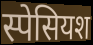
स्पेसियश